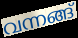
വന്നങ്ങ്